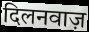
दिलनवाज़